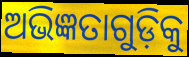
ଅଭିଜ୍ଞତାଗୁଡ଼ିକୁ